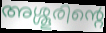
അശ്ശൂരിന്റെ